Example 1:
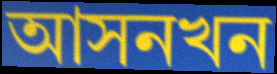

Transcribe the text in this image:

আসনখন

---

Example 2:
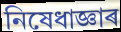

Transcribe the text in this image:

নিষেধাজ্ঞাৰ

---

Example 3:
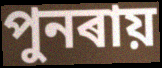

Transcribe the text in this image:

পুনৰায়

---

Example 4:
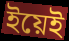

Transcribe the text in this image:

ইয়েই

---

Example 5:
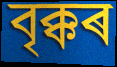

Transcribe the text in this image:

বৃক্কৰ